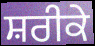
ਸ਼ਰੀਕੇ